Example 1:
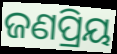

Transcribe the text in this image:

ଜଣପ୍ରିୟ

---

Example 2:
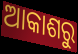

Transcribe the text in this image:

ଆକାଶରୁ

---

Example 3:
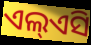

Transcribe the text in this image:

ଏଲ୍ଏସି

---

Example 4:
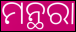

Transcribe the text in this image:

ମନ୍ଥରା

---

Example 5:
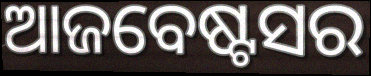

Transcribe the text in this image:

ଆଜବେଷ୍ଟସର